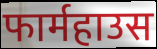
फार्महाउस